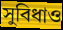
সুবিধাও